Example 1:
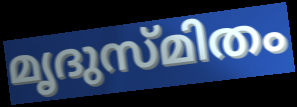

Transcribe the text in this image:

മൃദുസ്മിതം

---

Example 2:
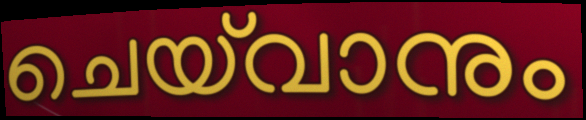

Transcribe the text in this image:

ചെയ്‌വാനും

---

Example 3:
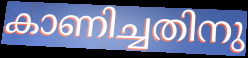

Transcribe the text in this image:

കാണിച്ചതിനു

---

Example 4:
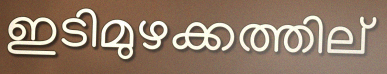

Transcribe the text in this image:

ഇടിമുഴക്കത്തില്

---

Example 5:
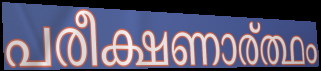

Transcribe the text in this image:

പരീക്ഷണാര്ത്ഥം